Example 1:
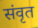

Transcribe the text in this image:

संवृत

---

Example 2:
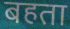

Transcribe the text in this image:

बहता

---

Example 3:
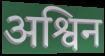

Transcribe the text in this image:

अश्विन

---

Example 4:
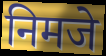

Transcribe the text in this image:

निमजे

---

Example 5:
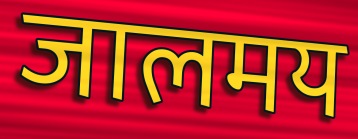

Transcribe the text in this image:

जालमय